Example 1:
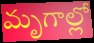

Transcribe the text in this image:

మృగాల్లో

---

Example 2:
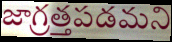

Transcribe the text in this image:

జాగ్రత్తపడమని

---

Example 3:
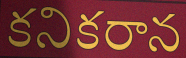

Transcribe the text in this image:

కనికరాన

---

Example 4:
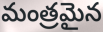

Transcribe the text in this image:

మంత్రమైన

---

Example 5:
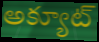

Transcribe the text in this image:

అక్యూట్